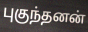
புகுந்தனன்